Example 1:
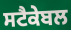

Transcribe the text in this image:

ਸਟੈਕੇਬਲ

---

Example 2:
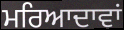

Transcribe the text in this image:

ਮਰਿਆਦਾਵਾਂ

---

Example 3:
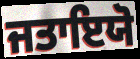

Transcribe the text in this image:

ਜਤਾਇਯੋ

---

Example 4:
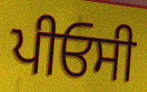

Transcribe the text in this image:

ਪੀਓਸੀ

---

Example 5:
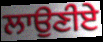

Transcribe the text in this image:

ਲਾਉਣੀਏ